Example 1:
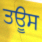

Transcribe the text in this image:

ਤਊਸ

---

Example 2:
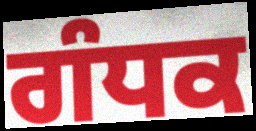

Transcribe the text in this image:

ਗੰਧਕ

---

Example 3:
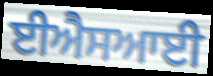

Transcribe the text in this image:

ਈਐਸਆਈ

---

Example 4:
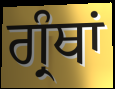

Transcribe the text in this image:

ਗ੍ਰੰਥਾਂ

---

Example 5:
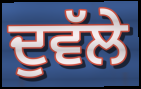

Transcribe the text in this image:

ਦੁਵੱਲੇ